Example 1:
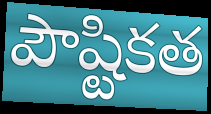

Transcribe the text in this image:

పౌష్టికత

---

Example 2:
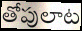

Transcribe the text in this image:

తోపులాట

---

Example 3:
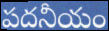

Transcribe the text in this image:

పదనీయం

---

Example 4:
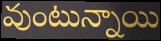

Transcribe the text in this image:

వుంటున్నాయి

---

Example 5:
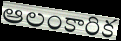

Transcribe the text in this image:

ఆలంకారిక